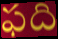
ఫది